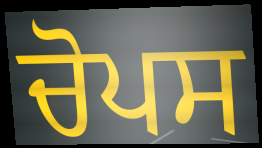
ਚੋਪਸ